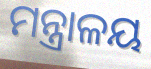
ମନ୍ତ୍ରାଳୟ